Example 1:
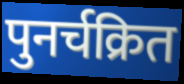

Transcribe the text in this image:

पुनर्चक्रित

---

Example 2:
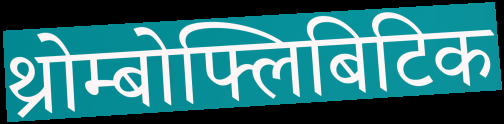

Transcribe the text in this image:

थ्रोम्बोफ्लिबिटिक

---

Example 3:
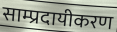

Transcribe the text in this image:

साम्प्रदायीकरण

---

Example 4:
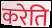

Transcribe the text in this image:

करेति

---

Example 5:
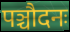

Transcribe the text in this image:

पञ्चौदनः